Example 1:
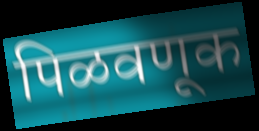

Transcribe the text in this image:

पिळवणूक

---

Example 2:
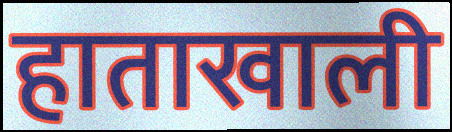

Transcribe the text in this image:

हाताखाली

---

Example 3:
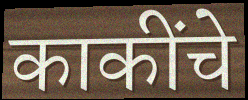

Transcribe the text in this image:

काकींचे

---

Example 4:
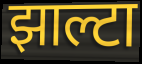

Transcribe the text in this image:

झाल्टा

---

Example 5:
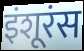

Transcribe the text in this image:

इंशूरंस